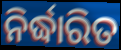
ନିର୍ଦ୍ଧାରିତ